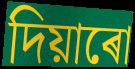
দিয়াৰো